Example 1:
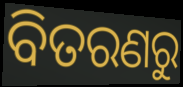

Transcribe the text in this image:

ବିତରଣରୁ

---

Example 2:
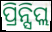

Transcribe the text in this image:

ପ୍ରିନ୍ସିପ୍ଲ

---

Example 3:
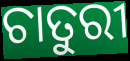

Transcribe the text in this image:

ଚାତୁରୀ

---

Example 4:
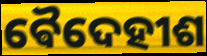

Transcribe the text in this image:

ଵୈଦେହୀଶ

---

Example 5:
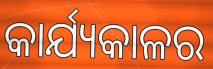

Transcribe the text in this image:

କାର୍ଯ୍ୟକାଳର